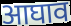
आघाव